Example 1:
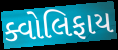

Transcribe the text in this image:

ક્વોલિફાય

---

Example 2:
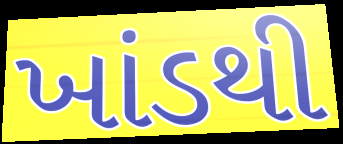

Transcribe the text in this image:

ખાંડથી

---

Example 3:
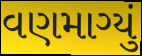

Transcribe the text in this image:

વણમાગ્યું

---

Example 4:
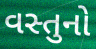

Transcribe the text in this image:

વસ્તુનો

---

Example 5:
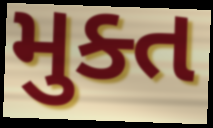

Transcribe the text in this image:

મુક્ત